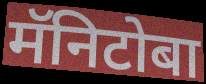
मॅनिटोबा